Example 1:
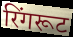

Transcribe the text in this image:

रिंगरूट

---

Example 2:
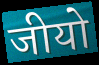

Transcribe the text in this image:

जीयो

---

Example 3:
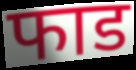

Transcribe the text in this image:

फाड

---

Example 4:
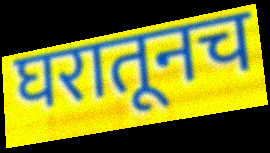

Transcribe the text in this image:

घरातूनच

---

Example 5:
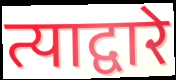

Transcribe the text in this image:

त्याद्वारे